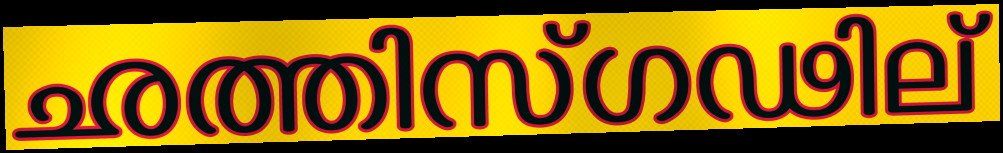
ഛത്തിസ്ഗഢില്